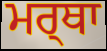
ਮਰ੍ਥਾ